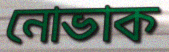
নোভাক